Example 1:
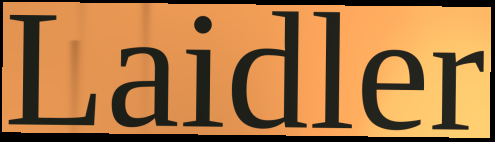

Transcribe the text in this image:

Laidler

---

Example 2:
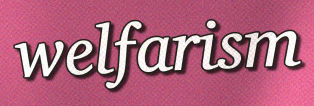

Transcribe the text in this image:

welfarism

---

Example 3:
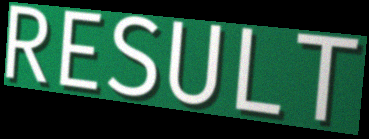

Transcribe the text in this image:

RESULT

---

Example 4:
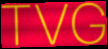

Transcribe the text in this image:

TVG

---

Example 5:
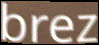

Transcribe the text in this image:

brez